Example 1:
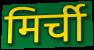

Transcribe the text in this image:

मिर्ची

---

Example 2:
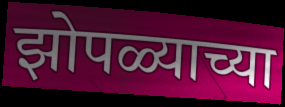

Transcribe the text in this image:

झोपळ्याच्या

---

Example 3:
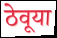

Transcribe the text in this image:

ठेवूया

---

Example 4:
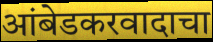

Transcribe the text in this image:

आंबेडकरवादाचा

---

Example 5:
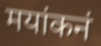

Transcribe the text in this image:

मयांकनं